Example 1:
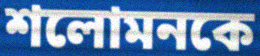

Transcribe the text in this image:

শলোমনকে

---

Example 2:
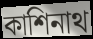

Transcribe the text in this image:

কাশিনাথ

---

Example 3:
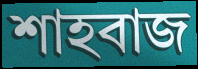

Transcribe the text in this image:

শাহবাজ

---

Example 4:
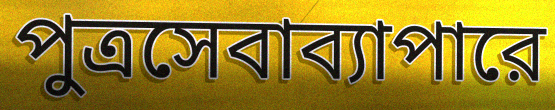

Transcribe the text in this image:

পুত্রসেবাব্যাপারে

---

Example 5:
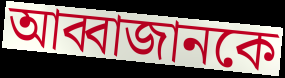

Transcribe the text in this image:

আব্বাজানকে